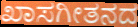
ಖಾಸಗೀತನದ